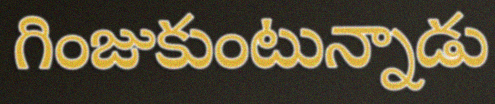
గింజుకుంటున్నాడు